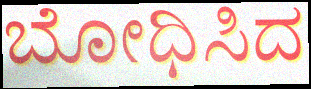
ಬೋಧಿಸಿದ